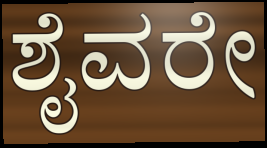
ಶೈವರೇ